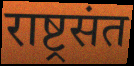
राष्ट्रसंत